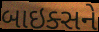
બાઇક્સને